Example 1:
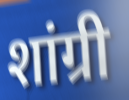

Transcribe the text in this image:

शांग्री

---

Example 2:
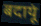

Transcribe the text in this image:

बदायूं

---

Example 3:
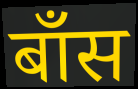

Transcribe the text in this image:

बाँस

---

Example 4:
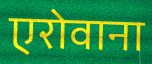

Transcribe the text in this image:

एरोवाना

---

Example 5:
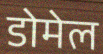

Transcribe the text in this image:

डोमेल